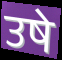
उषे